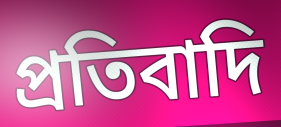
প্রতিবাদি